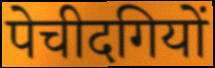
पेचीदगियों